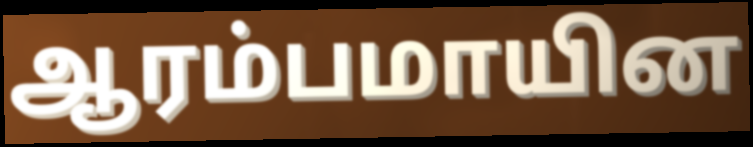
ஆரம்பமாயின